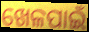
ଖେଳପାଇଁ